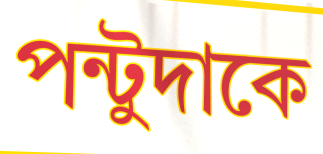
পন্টুদাকে